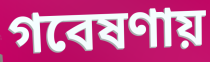
গবেষণায়